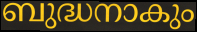
ബുദ്ധനാകും